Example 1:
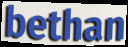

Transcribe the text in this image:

bethan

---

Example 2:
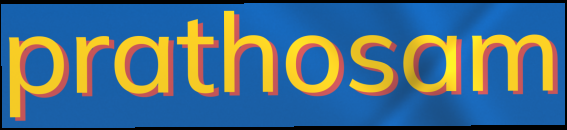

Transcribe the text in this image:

prathosam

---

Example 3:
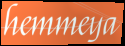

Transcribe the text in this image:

hemmeya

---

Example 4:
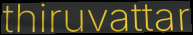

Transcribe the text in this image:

thiruvattar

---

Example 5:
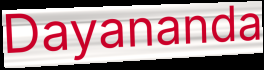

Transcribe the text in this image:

Dayananda